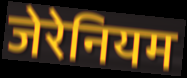
जेरेनियम